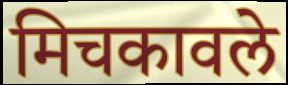
मिचकावले